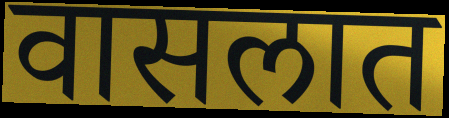
वासलात